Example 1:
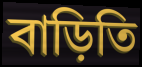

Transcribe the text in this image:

বাড়িতি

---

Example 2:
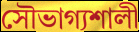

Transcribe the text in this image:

সৌভাগ্যশালী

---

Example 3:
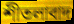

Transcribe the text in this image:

শীতলাবাদ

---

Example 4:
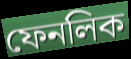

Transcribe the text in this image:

ফেনলিক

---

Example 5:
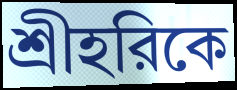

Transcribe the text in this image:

শ্রীহরিকে